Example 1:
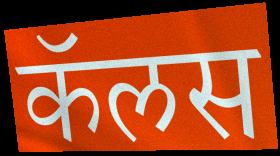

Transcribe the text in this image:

कॅलस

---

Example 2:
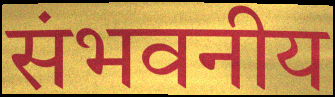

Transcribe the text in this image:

संभवनीय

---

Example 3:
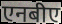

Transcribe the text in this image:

एनबीए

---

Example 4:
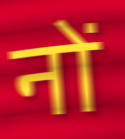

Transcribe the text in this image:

नों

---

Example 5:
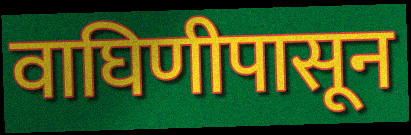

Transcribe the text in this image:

वाघिणीपासून